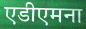
एडीएमना